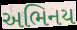
અભિનય